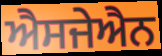
ਐਸਜੇਐਨ